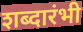
शब्दारंभी